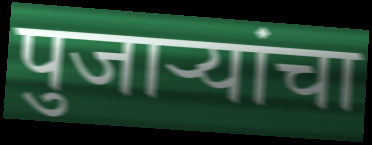
पुजाऱ्यांचा